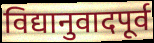
विद्यानुवादपूर्व